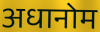
अधानोम